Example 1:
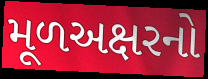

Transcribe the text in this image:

મૂળઅક્ષરનો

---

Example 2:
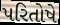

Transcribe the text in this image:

પરિતોષે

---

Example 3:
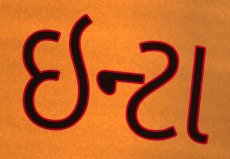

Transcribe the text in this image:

ઇન્ટા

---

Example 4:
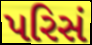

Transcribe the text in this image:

પરિસં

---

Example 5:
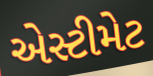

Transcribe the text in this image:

એસ્ટીમેટ